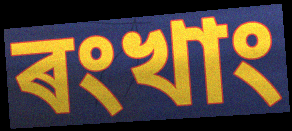
ৰংখাং